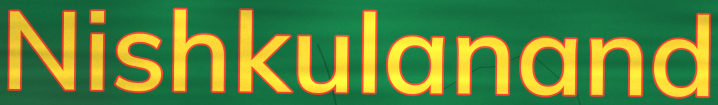
Nishkulanand